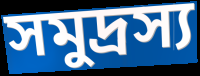
সমুদ্রস্য